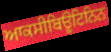
ਆਕਸੀਬਿਊਟਿਨਿਨ